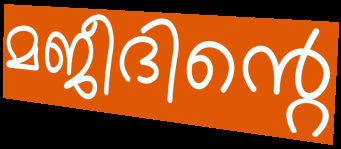
മജീദിന്റെ